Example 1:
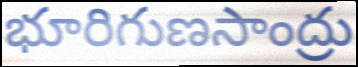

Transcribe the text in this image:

భూరిగుణసాంద్రు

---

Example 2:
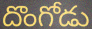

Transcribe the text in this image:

దొంగోడు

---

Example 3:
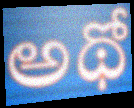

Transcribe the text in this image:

అథో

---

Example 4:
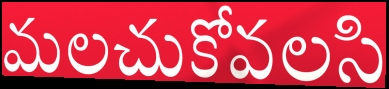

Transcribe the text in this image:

మలచుకోవలసి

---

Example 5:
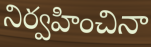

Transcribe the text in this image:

నిర్వహించినా